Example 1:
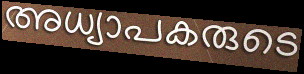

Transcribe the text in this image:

അധ്യാപകരുടെ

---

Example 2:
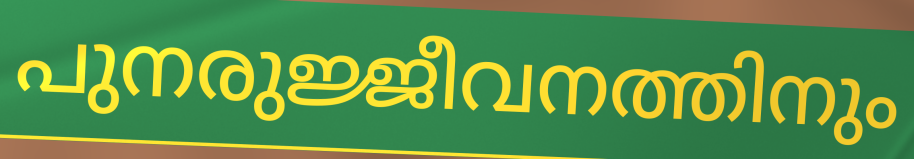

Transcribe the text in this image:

പുനരുജ്ജീവനത്തിനും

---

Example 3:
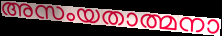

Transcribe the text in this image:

അസംയതാത്മനാ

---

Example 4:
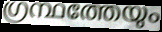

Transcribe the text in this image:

ഗ്രന്ഥത്തേയും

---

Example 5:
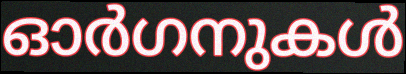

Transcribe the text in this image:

ഓർഗനുകൾ